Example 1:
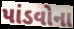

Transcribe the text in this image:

પાંડવોના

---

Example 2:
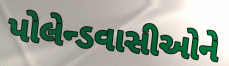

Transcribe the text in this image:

પોલેન્ડવાસીઓને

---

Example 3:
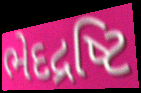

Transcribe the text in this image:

ભેદદ્રષ્ટિ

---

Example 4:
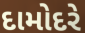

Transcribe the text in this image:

દામોદરે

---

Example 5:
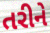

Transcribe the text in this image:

તરીને